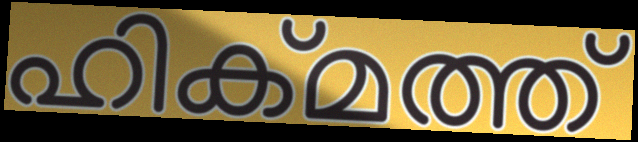
ഹിക്മത്ത്